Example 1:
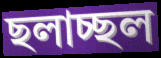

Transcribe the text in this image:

ছলাচ্ছল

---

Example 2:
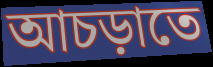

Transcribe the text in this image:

আচড়াতে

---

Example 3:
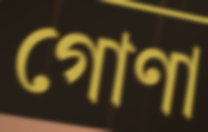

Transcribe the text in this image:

গোণা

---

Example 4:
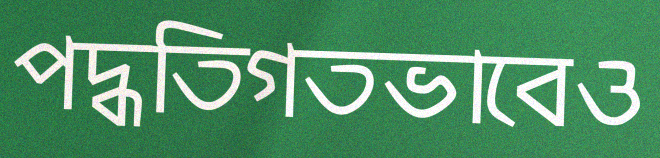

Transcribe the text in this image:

পদ্ধতিগতভাবেও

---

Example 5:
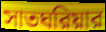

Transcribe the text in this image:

সাতঘরিয়ার